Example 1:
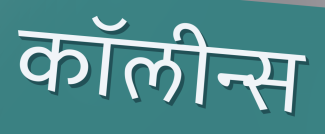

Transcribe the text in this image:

कॉलीन्स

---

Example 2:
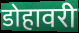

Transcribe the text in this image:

डोहावरी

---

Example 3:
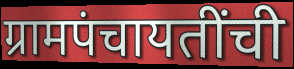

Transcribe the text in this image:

ग्रामपंचायतींची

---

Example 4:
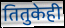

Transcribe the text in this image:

तितुकेही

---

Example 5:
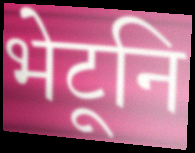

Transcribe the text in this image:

भेटूनि